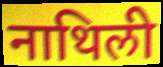
नाथिली